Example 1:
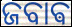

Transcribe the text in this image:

ଜବାଵ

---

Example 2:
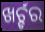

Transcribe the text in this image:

ଖର୍ଚ୍ଚର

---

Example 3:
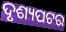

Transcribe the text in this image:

ଦୃଶ୍ୟପଟର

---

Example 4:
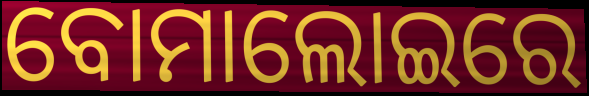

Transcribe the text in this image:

ବୋମାଲୋଇରେ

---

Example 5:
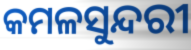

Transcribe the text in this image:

କମଳସୁନ୍ଦରୀ